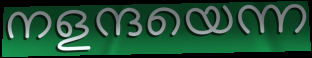
നളന്ദയെന്ന